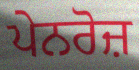
ਪੇਨਰੋਜ਼